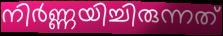
നിർണ്ണയിച്ചിരുന്നത്